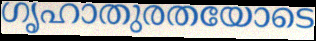
ഗൃഹാതുരതയോടെ